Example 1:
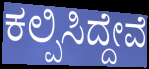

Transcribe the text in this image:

ಕಲ್ಪಿಸಿದ್ದೇವೆ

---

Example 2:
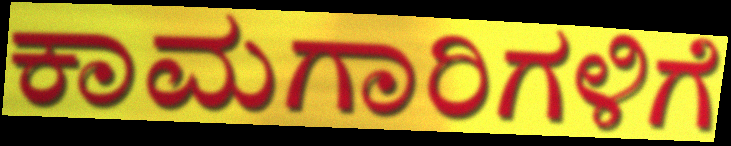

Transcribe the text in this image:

ಕಾಮಗಾರಿಗಳಿಗೆ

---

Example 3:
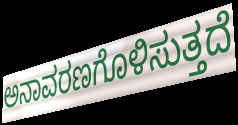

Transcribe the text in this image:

ಅನಾವರಣಗೊಳಿಸುತ್ತದೆ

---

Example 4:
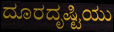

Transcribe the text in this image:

ದೂರದೃಷ್ಟಿಯು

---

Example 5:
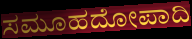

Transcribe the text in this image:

ಸಮೂಹದೋಪಾದಿ